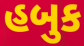
હબુક